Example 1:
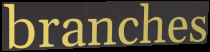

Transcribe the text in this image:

branches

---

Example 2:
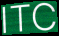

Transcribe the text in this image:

ITC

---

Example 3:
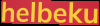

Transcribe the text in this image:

helbeku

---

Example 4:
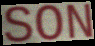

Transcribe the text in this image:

SON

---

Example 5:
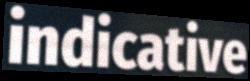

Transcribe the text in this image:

indicative